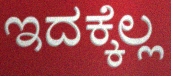
ಇದಕ್ಕೆಲ್ಲ